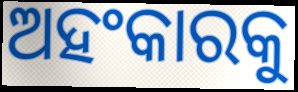
ଅହଂକାରକୁ